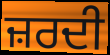
ਜ਼ਰਦੀ